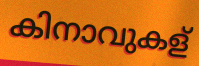
കിനാവുകള്